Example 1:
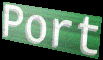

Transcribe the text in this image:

Port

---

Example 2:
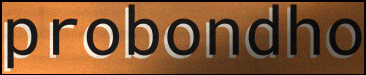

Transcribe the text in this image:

probondho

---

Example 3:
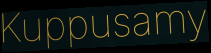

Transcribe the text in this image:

Kuppusamy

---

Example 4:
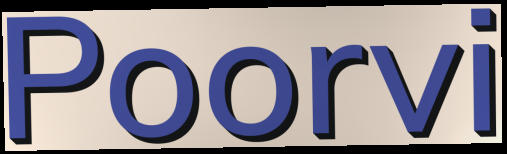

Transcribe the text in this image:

Poorvi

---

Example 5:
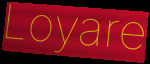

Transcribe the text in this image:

Loyare